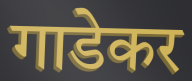
गाडेकर